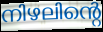
നിഴലിന്റെ